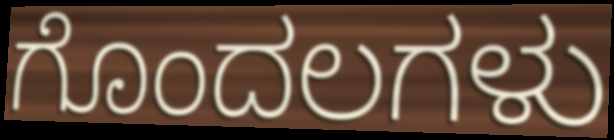
ಗೊಂದಲಗಳು